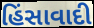
હિંસાવાદી